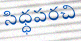
సిధ్ధపరచి